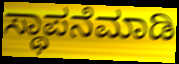
ಸ್ಥಾಪನೆಮಾಡಿ